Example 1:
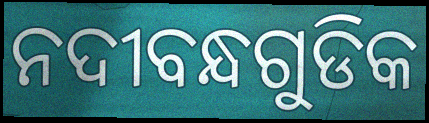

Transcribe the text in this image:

ନଦୀବନ୍ଧଗୁଡିକ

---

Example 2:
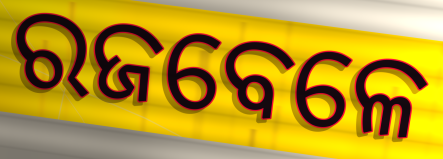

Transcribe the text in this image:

ରଜବେଳେ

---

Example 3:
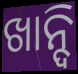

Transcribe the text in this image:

ଖାନ୍ଦି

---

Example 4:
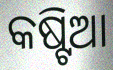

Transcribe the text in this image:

କଷ୍ଟିଆ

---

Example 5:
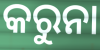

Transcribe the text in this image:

କରୁନା